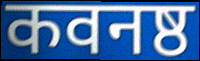
कवनष्ठ